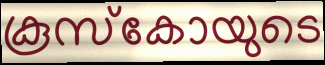
കൂസ്കോയുടെ